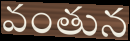
వంతున